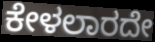
ಕೇಳಲಾರದೇ